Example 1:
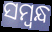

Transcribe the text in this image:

ସମ୍ବନ୍ଧ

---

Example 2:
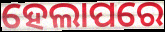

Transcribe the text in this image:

ହେଲାପରେ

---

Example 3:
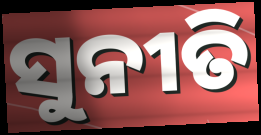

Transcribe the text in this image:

ସୁନୀତି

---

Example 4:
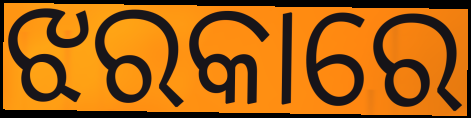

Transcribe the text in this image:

ଝରକାରେ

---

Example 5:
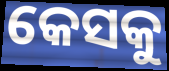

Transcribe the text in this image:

କେସକୁ